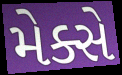
મેક્સે